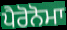
ਪੈਰੋਨੋਮਾ